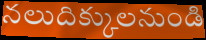
నలుదిక్కులనుండి